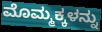
ಮೊಮ್ಮಕ್ಕಳನ್ನು